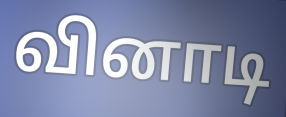
வினாடி